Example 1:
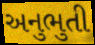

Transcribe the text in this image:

અનુભુતી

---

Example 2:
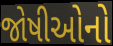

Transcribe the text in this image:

જોષીઓનો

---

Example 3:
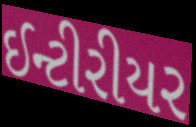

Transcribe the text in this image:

ઈન્ટીરીયર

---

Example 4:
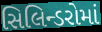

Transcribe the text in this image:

સિલિન્ડરોમાં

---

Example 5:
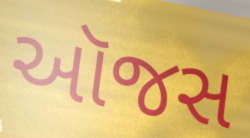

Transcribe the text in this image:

ઑજસ